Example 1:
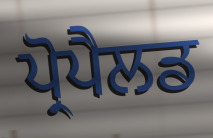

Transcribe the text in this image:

ਪ੍ਰੋਪੈਲਡ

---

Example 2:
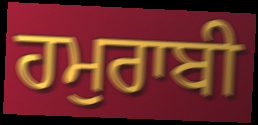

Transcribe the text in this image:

ਹਮੁਰਾਬੀ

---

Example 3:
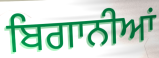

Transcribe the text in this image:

ਬਿਗਾਨੀਆਂ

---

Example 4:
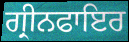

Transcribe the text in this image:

ਗ੍ਰੀਨਫਾਇਰ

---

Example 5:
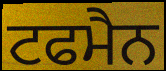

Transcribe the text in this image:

ਟਫਮੈਨ